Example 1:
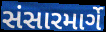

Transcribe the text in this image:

સંસારમાર્ગે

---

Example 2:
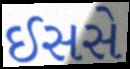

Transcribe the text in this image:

ઈસસે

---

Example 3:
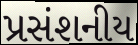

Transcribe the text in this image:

પ્રસંશનીય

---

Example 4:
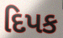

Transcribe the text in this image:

દિપક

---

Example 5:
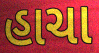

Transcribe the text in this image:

હાચા